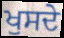
ਖੁਸਦੇ